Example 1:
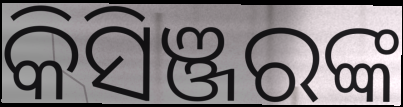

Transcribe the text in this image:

କିସିଞ୍ଜରଙ୍କ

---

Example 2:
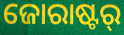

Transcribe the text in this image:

ଜୋରାଷ୍ଟର୍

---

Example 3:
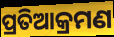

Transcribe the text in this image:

ପ୍ରତିଆକ୍ରମଣ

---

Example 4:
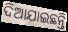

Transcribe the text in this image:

ଦିଆଯାଇଛନ୍ତି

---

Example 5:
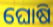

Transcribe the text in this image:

ଘୋଷି